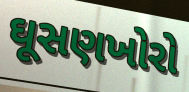
ઘૂસણખોરો